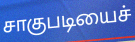
சாகுபடியைச்